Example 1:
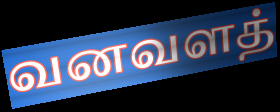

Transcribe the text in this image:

வனவளத்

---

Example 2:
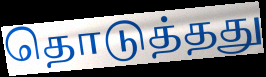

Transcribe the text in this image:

தொடுத்தது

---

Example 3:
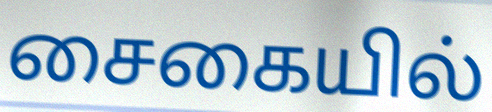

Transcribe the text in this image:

சைகையில்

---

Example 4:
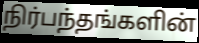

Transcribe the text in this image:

நிர்பந்தங்களின்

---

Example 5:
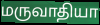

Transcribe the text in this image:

மருவாதியா